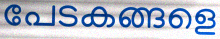
പേടകങ്ങളെ